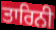
ਤਾਰਿਨੀ